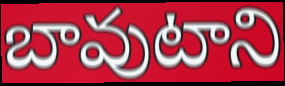
బావుటాని